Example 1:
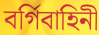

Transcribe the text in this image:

বর্গিবাহিনী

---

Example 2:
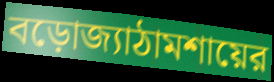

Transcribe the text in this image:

বড়োজ্যাঠামশায়ের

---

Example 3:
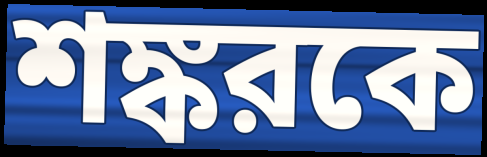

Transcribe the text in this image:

শঙ্করকে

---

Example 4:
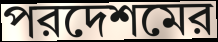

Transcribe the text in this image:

পরদেশমের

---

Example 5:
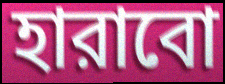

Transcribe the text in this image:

হারাবো